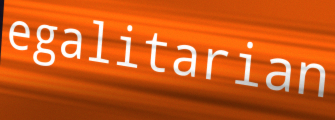
egalitarian